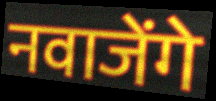
नवाजेंगे